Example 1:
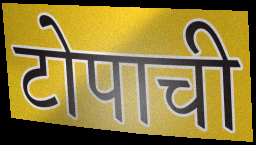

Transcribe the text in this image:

टोपाची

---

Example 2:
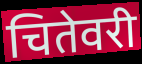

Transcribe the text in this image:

चितेवरी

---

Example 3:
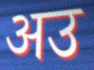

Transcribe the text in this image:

अउ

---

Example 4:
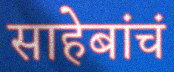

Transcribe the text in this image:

साहेबांचं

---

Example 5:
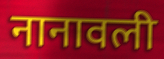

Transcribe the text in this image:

नानावली